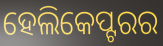
ହେଲିକେପ୍ଟରର